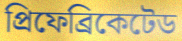
প্রিফেব্রিকেটেড